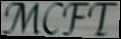
MCFT